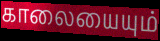
காலையையும்